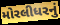
મોરલીધરનું